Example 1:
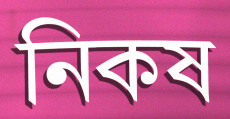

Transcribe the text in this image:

নিকষ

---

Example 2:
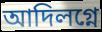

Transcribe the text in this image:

আদিলগ্নে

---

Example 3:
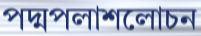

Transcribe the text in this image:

পদ্মপলাশলোচন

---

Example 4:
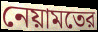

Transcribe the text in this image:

নেয়ামতের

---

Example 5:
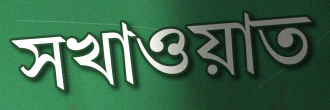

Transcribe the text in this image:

সখাওয়াত